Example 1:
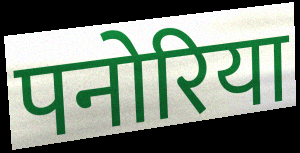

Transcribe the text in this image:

पनोरिया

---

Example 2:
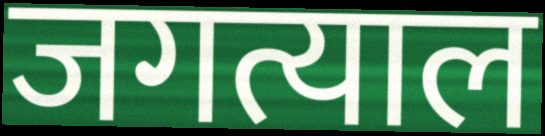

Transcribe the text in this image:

जगत्याल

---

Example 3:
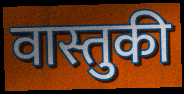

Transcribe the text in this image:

वास्तुकी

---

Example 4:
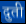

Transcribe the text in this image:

दुती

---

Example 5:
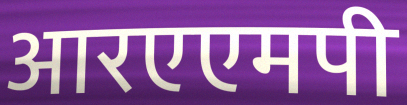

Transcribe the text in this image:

आरएएमपी